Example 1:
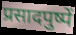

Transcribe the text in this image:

प्रसादपुष्पें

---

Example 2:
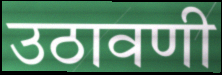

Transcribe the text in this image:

उठावणी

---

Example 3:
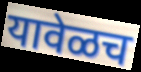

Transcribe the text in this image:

यावेळच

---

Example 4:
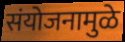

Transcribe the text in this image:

संयोजनामुळे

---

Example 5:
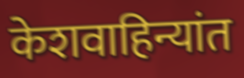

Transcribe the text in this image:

केशवाहिन्यांत